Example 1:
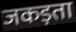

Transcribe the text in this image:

जकड़ता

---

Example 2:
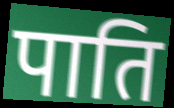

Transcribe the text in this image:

पाति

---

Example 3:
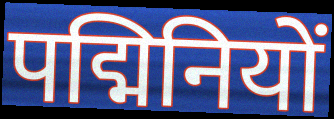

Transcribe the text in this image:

पद्मिनियों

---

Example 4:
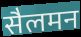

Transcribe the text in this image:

सैलमन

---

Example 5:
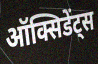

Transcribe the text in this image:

ऑक्सिडेंट्स